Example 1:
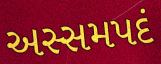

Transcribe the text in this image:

અસ્સમપદં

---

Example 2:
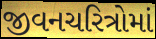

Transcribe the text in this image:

જીવનચરિત્રોમાં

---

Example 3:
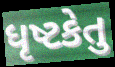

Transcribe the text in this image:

ધૃષ્ટકેતુ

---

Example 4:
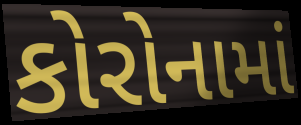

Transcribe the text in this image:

કોરોનામાં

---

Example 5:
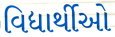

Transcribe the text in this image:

વિદ્યાર્થીઓ